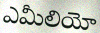
ఎమీలియో